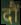
दौं